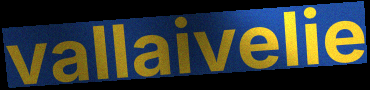
vallaivelie